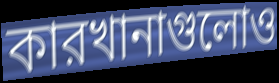
কারখানাগুলোও